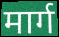
मार्ग